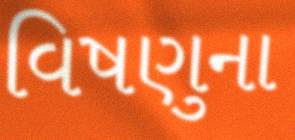
વિષણુના